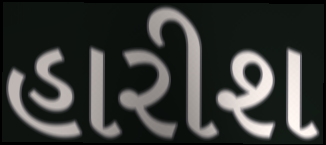
હારીશ